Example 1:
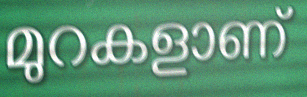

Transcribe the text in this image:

മുറകളാണ്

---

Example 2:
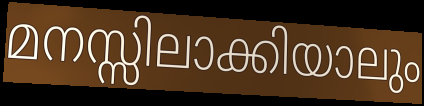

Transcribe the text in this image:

മനസ്സിലാക്കിയാലും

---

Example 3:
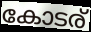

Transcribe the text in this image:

കോടര്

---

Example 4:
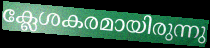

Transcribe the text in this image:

ക്ലേശകരമായിരുന്നു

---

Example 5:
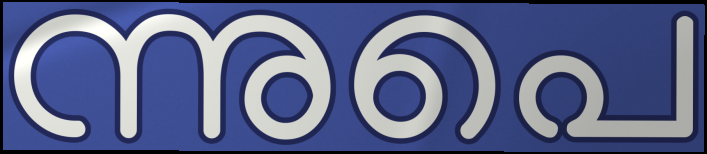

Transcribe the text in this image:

ന്നുപെ